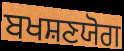
ਬਖਸ਼ਣਯੋਗ